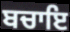
ਬਚਾਇ